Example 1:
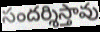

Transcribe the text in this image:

సందర్శిస్తావు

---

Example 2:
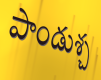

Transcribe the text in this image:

పాండుశ్చ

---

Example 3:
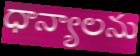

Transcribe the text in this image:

ధాన్యాలను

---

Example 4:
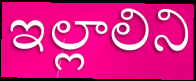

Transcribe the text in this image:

ఇల్లాలిని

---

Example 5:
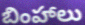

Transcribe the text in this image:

బింహాలు